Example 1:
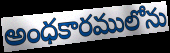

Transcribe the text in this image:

అంధకారములోను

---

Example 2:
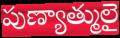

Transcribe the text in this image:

పుణ్యాత్ములై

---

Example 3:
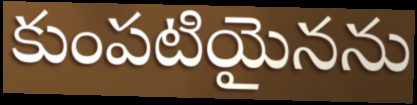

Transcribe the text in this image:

కుంపటియైనను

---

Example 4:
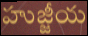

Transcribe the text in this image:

హుజ్జీయ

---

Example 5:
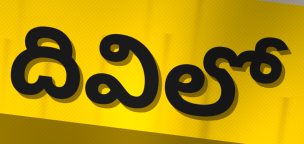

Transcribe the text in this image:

దివిలో